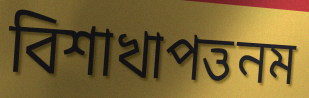
বিশাখাপত্তনম